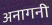
अनागनी